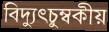
বিদ্যুৎচুম্বকীয়